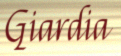
Giardia